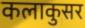
कलाकुसर